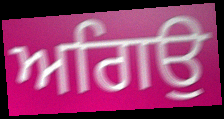
ਅਗਿਉ